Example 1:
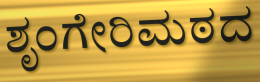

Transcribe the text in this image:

ಶೃಂಗೇರಿಮಠದ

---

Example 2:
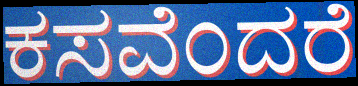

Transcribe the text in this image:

ಕಸವೆಂದರೆ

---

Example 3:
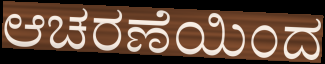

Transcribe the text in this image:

ಆಚರಣೆಯಿಂದ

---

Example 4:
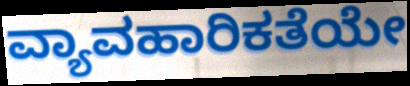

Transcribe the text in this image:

ವ್ಯಾವಹಾರಿಕತೆಯೇ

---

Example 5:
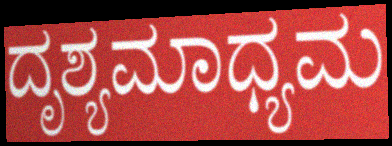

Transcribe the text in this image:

ದೃಶ್ಯಮಾಧ್ಯಮ